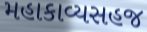
મહાકાવ્યસહજ